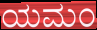
ಯಮಂ